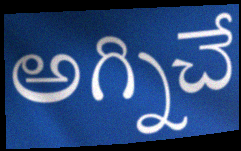
అగ్నిచే